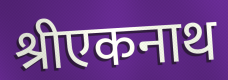
श्रीएकनाथ